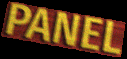
PANEL